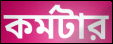
কর্মটার